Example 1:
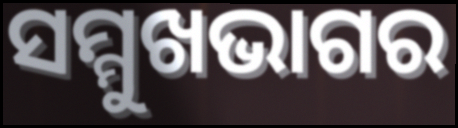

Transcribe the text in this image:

ସମ୍ମୁଖଭାଗର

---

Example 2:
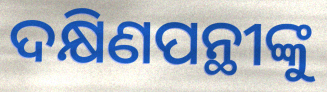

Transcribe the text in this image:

ଦକ୍ଷିଣପନ୍ଥୀଙ୍କୁ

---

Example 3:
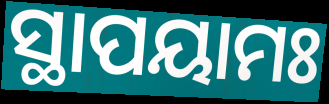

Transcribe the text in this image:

ସ୍ଥାପୟାମଃ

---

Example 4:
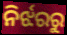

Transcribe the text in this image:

ନିର୍ଝରରୁ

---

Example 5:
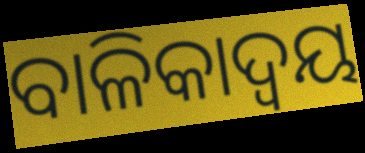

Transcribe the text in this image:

ବାଳିକାଦ୍ୱୟ